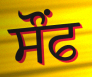
ਸੌਂਫ